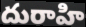
దురాహి